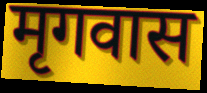
मृगवास